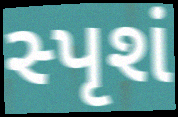
સ્પૃશં